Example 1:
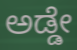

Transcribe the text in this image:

ಅಡ್ಡೇ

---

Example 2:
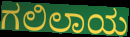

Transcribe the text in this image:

ಗಲಿಲಾಯ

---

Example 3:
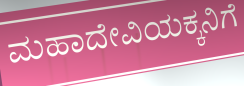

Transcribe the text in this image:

ಮಹಾದೇವಿಯಕ್ಕನಿಗೆ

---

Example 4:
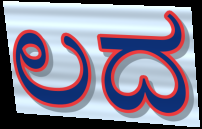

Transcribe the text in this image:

ಲದ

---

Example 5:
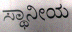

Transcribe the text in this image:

ಸ್ಥಾನೀಯ